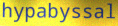
hypabyssal